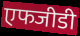
एफजीडी